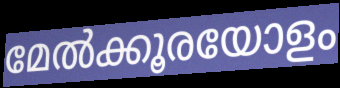
മേൽക്കൂരയോളം